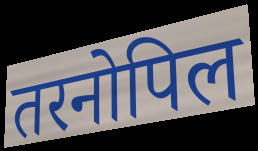
तरनोपिल